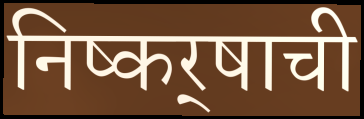
निष्कर्षाची